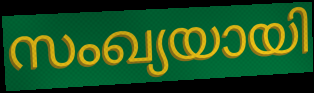
സംഖ്യയായി